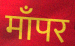
माँपर